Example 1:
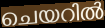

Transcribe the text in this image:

ചെയറിൽ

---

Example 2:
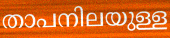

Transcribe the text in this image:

താപനിലയുള്ള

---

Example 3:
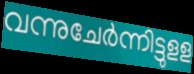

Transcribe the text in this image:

വന്നുചേർന്നിട്ടുളള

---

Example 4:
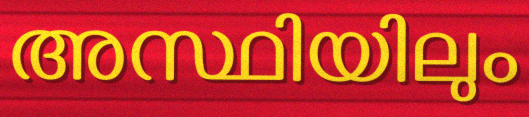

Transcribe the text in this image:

അസ്ഥിയിലും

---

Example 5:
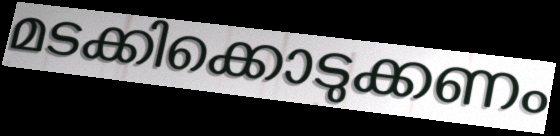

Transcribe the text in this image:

മടക്കിക്കൊടുക്കണം